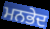
ਮਨਭੇਦ